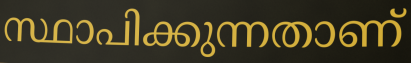
സ്ഥാപിക്കുന്നതാണ്